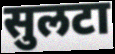
सुलटा